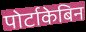
पोर्टाकेबिन